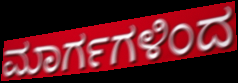
ಮಾರ್ಗಗಳಿಂದ